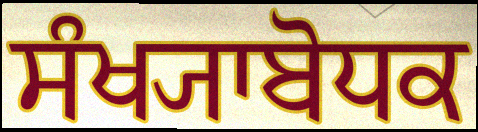
ਸੰਖ੍ਯਾਬੋਧਕ